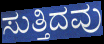
ಸುತ್ತಿದವು